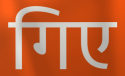
गिए